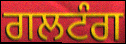
ਗਲਟੰਗ